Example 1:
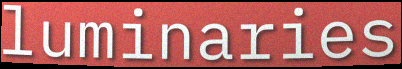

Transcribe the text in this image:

luminaries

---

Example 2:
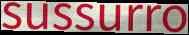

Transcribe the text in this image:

sussurro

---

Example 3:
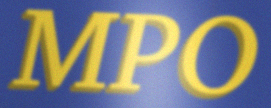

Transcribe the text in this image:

MPO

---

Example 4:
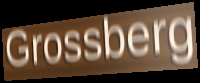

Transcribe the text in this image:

Grossberg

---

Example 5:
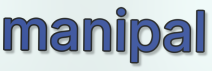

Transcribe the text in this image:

manipal